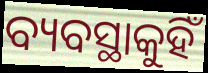
ବ୍ୟବସ୍ଥାକୁହିଁ